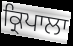
ਕ੍ਰਿਪਾਲਾ